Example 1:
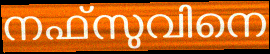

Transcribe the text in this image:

നഫ്സുവിനെ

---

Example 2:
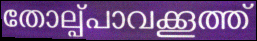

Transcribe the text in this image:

തോല്പ്പാവക്കൂത്ത്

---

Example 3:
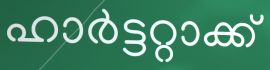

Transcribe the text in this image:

ഹാർട്ടറ്റാക്ക്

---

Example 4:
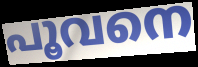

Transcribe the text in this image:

പൂവനെ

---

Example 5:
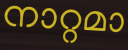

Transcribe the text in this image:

നാറ്റമാ